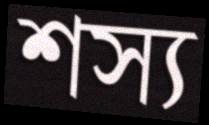
শস্য